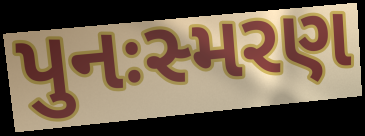
પુનઃસ્મરણ